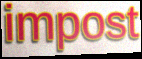
impost